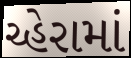
ચ્હેરામાં